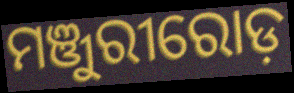
ମଞ୍ଜୁରୀରୋଡ଼